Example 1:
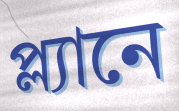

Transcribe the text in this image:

প্ল্যানে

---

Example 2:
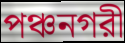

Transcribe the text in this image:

পঞ্চনগরী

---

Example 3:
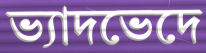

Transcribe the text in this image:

ভ্যাদভেদে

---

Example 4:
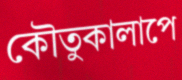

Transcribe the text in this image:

কৌতুকালাপে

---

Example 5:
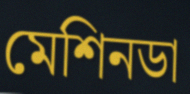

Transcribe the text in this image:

মেশিনডা